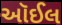
ઑઈલ